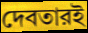
দেবতারই